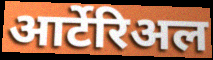
आर्टेरिअल